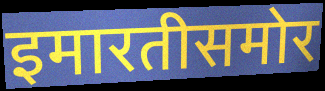
इमारतीसमोर